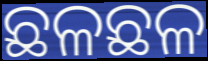
ଛଳଛଳ